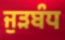
ਜੁੜਬੰਧ